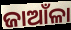
ଜାଆଁଳା